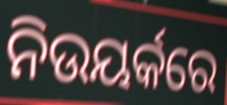
ନିଉୟର୍କରେ